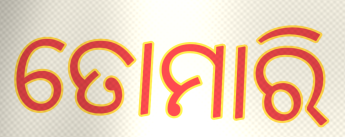
ତୋମାରି